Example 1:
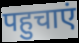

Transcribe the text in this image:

पहुचाएं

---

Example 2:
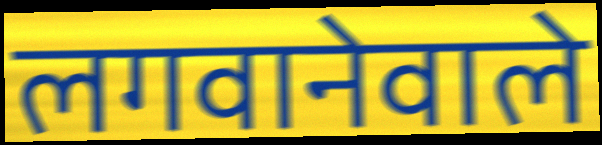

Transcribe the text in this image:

लगवानेवाले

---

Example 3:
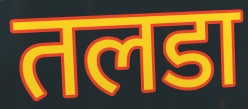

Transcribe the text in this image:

तलडा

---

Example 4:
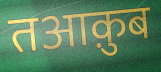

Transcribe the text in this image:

तआक़ुब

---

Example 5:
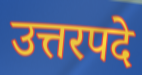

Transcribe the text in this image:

उत्तरपदे